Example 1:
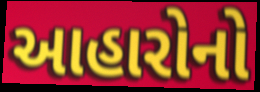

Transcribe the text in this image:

આહારોનો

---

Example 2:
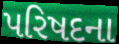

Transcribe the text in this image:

પરિષદના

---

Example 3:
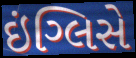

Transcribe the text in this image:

ઇંગ્લિસે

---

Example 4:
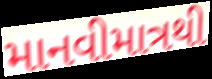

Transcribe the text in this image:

માનવીમાત્રથી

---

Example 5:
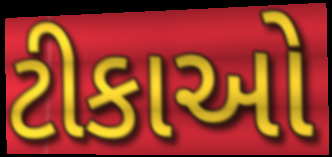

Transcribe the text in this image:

ટીકાઓ